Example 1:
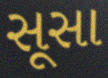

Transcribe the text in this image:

સૂસા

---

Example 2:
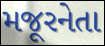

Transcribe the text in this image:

મજૂરનેતા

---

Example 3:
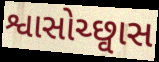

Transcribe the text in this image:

શ્વાસોચ્છ્વાસ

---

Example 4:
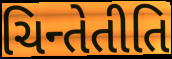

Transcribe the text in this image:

ચિન્તેતીતિ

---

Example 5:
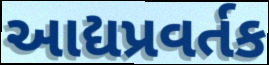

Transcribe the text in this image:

આદ્યપ્રવર્તક